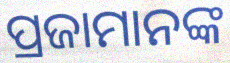
ପ୍ରଜାମାନଙ୍କ